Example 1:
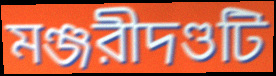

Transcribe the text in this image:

মঞ্জরীদণ্ডটি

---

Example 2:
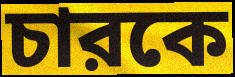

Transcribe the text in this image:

চারকে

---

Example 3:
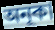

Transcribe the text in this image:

অনূকা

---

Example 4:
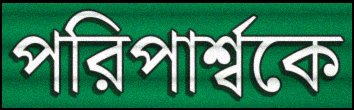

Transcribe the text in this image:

পরিপার্শ্বকে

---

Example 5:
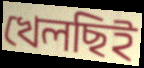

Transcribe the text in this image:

খেলছিই